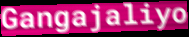
Gangajaliyo